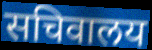
सचिवालय